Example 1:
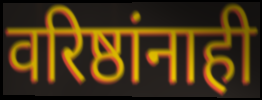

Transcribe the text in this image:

वरिष्ठांनाही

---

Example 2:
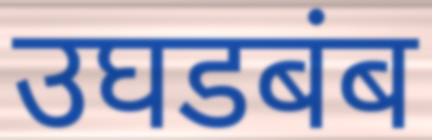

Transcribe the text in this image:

उघडबंब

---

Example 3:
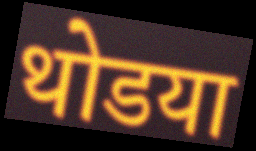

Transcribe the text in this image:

थोडया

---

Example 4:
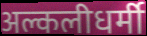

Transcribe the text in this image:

अल्कलीधर्मी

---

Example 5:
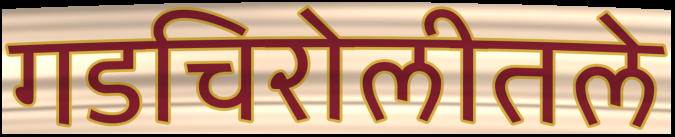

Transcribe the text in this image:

गडचिरोलीतले